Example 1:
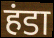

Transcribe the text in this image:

हंडा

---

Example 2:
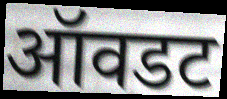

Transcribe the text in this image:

ऑवडट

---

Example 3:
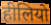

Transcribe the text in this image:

हीलियो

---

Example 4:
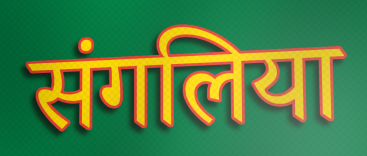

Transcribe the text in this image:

संगलिया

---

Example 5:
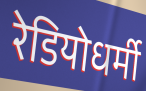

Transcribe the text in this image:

रेडियोधर्मी